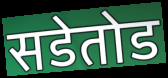
सडेतोड